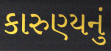
કારુણ્યનું